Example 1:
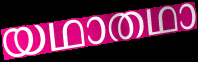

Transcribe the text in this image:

യഥാതഥാ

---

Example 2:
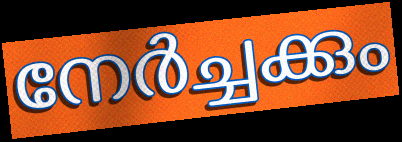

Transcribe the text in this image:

നേർച്ചക്കും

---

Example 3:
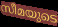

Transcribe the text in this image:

സീമയുടെ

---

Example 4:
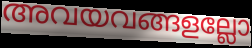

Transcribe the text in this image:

അവയവങ്ങളല്ലോ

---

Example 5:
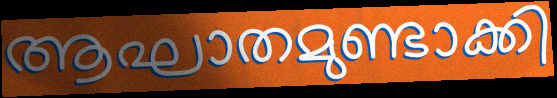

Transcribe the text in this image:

ആഘാതമുണ്ടാക്കി